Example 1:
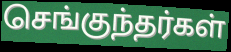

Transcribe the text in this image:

செங்குந்தர்கள்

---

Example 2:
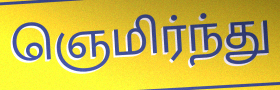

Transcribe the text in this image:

ஞெமிர்ந்து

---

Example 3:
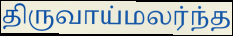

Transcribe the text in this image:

திருவாய்மலர்ந்த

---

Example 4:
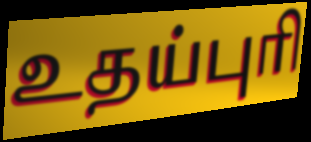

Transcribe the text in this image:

உதய்புரி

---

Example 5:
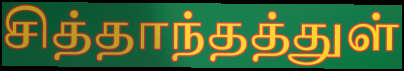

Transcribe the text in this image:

சித்தாந்தத்துள்